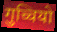
गुच्चियो